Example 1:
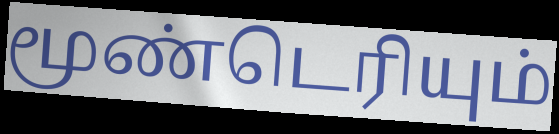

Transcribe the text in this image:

மூண்டெரியும்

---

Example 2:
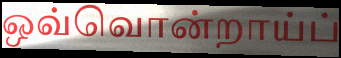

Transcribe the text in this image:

ஒவ்வொன்றாய்ப்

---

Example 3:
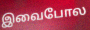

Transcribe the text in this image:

இவைபோல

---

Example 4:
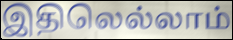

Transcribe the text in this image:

இதிலெல்லாம்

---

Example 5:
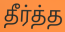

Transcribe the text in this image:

தீர்த்த